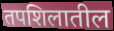
तपशिलातील